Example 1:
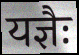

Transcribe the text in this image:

यज्ञैः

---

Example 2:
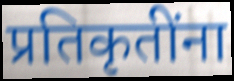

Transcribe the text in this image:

प्रतिकृतींना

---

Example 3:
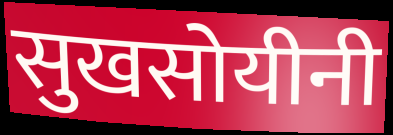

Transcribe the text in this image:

सुखसोयीनी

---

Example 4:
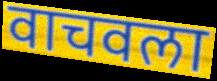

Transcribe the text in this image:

वाचवला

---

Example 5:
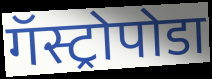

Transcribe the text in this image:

गॅस्ट्रोपोडा